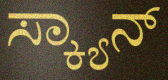
ಸ್ಕ್ಯಾನ್